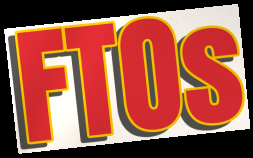
FTOs